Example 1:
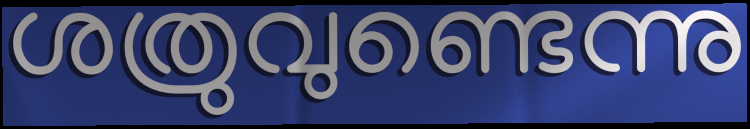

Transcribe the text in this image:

ശത്രുവുണ്ടെന്നു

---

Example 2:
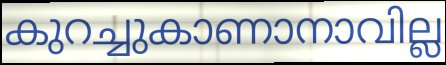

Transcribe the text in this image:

കുറച്ചുകാണാനാവില്ല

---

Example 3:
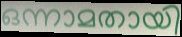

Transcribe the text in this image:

ഒന്നാമതായി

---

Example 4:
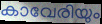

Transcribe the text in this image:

കാവേരിയും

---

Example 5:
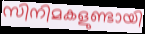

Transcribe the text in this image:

സിനിമകളുണ്ടായി